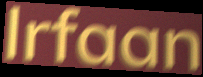
Irfaan